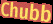
Chubb